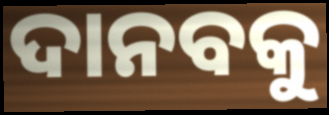
ଦାନବକୁ